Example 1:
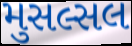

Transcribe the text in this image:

મુસલ્સલ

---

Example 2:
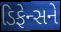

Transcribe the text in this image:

ડિફેન્સને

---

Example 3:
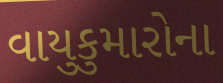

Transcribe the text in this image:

વાયુકુમારોના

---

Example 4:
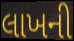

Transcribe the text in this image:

લાખની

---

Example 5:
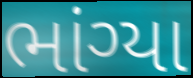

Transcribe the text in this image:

ભાંગ્યા